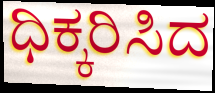
ಧಿಕ್ಕರಿಸಿದ